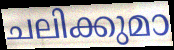
ചലിക്കുമാ